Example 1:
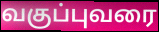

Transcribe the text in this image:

வகுப்புவரை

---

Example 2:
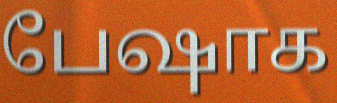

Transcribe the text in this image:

பேஷாக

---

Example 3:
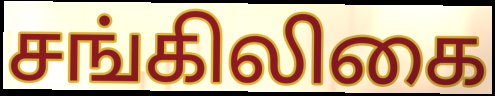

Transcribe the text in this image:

சங்கிலிகை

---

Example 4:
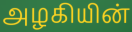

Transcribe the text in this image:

அழகியின்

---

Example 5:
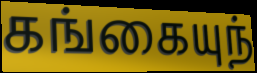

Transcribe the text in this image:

கங்கையுந்